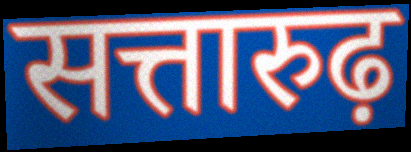
सत्तारुढ़